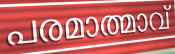
പരമാത്മാവ്